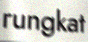
rungkat